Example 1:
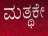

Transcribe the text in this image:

ಮತ್ಥಕೇ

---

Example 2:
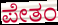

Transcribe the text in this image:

ಪೇತಂ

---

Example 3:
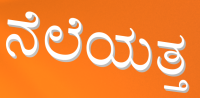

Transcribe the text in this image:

ನೆಲೆಯತ್ತ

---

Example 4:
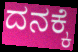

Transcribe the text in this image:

ದನಕ್ಕೆ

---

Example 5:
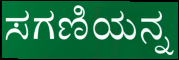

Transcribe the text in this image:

ಸಗಣಿಯನ್ನ